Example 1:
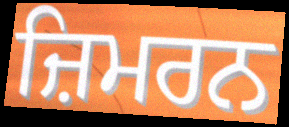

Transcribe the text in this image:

ਜ਼ਿਮਰਨ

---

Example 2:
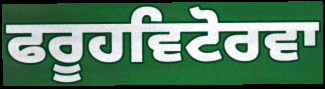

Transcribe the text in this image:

ਫਰੂਹਵਿਟੋਰਵਾ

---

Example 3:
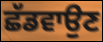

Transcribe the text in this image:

ਛੱਡਵਾਉਣ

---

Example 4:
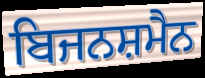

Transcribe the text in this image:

ਬਿਜਨਸ਼ਮੈਨ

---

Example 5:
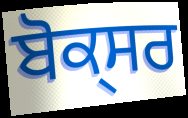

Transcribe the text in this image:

ਬੋਕ੍ਸਰ